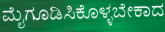
ಮೈಗೂಡಿಸಿಕೊಳ್ಳಬೇಕಾದ